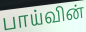
பாய்வின்